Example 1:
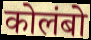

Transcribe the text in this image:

कोलंबो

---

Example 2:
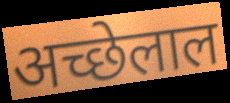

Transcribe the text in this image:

अच्छेलाल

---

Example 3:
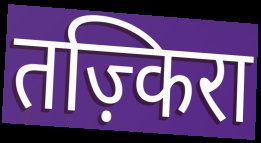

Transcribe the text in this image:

तज़्किरा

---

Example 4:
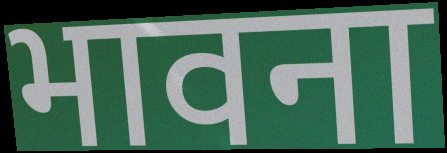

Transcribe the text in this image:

भावना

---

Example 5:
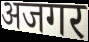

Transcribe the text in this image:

अजगर